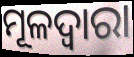
ମୂଳଦ୍ଵାରା